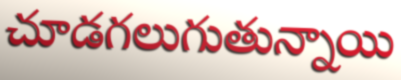
చూడగలుగుతున్నాయి